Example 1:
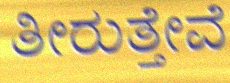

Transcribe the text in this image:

ತೀರುತ್ತೇವೆ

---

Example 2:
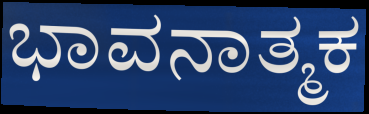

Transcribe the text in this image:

ಭಾವನಾತ್ಮಕ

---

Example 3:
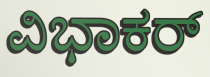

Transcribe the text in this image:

ವಿಭಾಕರ್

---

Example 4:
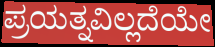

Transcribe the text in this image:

ಪ್ರಯತ್ನವಿಲ್ಲದೆಯೇ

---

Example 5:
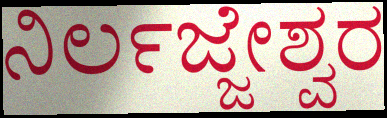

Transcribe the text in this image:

ನಿರ್ಲಜ್ಜೇಶ್ವರ